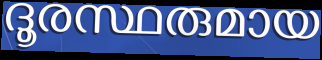
ദൂരസ്ഥരുമായ